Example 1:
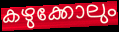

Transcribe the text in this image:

കഴുക്കോലും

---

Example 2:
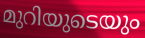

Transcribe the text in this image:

മുറിയുടെയും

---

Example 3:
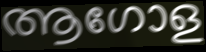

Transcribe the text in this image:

ആഗോള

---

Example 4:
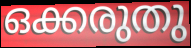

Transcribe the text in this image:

ഒക്കരുതു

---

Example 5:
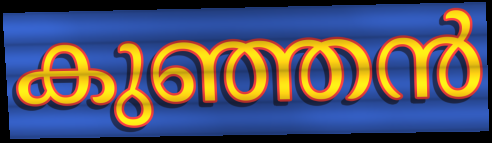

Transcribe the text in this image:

കുഞ്ഞൻ